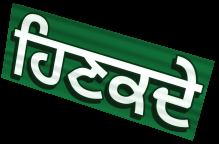
ਹਿਣਕਦੇ